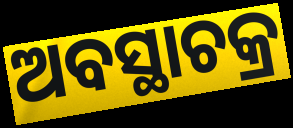
ଅବସ୍ଥାଚକ୍ର